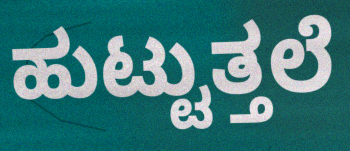
ಹುಟ್ಟುತ್ತಲೆ